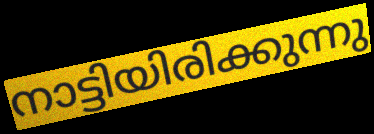
നാട്ടിയിരിക്കുന്നു